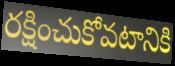
రక్షించుకోవటానికి